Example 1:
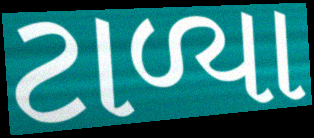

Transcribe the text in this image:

ટાળ્યા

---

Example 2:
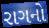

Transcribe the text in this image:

રાગનો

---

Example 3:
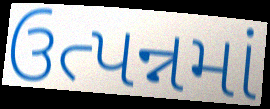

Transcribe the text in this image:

ઉત્પન્નમાં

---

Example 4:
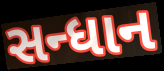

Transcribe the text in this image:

સન્ધાન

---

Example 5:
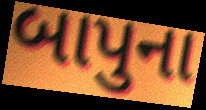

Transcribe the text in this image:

બાપુના